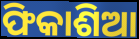
ଫିକାଶିଆ